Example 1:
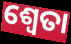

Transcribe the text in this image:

ଶ୍ୱେତା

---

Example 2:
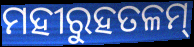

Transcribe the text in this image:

ମହୀରୁହତଳମ୍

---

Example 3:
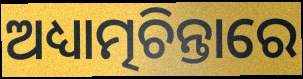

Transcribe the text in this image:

ଅଧ୍ୟାତ୍ମଚିନ୍ତାରେ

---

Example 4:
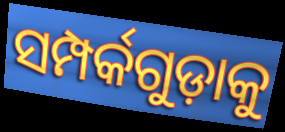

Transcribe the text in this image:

ସମ୍ପର୍କଗୁଡ଼ାକୁ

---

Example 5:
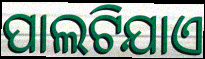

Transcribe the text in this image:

ପାଲଟିଯାଏ